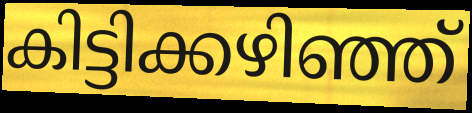
കിട്ടിക്കഴിഞ്ഞ്